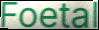
Foetal